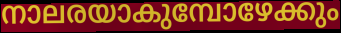
നാലരയാകുമ്പോഴേക്കും